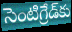
సెంటిగ్రేడ్‌కు